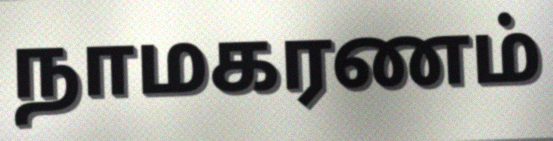
நாமகரணம்